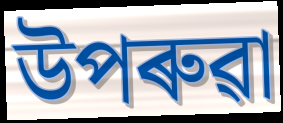
উপৰুৱা